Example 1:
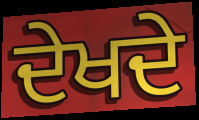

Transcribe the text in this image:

ਦੇਖਦੇ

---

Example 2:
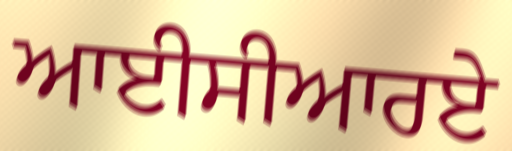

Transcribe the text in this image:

ਆਈਸੀਆਰਏ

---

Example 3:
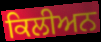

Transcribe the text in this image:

ਕਿਲੀਅਨ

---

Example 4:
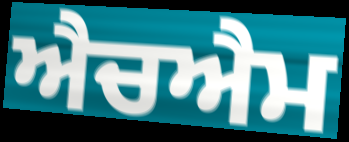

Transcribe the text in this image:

ਐਚਐਮ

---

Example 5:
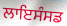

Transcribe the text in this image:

ਲਾਇਸੰਸਡ